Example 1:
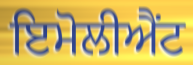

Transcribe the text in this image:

ਇਮੋਲੀਐਂਟ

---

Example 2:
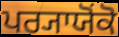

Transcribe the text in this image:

ਪਰ੍ਯਾਯੋਂਕੋ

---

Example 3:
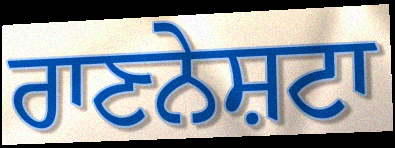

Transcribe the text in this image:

ਰਾਣਨੇਸ਼ਟਾ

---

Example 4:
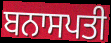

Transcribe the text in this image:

ਬਨਾਸਪਤੀ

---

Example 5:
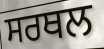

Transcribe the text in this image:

ਸਰਥਲ